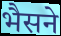
भैसने